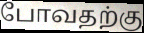
போவதற்கு